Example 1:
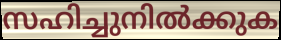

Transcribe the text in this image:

സഹിച്ചുനിൽക്കുക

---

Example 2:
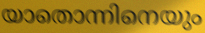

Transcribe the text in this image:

യാതൊന്നിനെയും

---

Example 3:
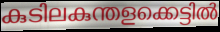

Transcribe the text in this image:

കുടിലകുന്തളക്കെട്ടിൽ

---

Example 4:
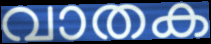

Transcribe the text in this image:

വാതക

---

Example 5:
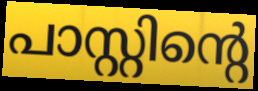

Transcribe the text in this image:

പാസ്റ്റിന്റെ